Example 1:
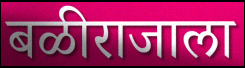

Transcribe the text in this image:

बळीराजाला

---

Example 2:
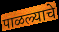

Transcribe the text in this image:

पाळल्याचे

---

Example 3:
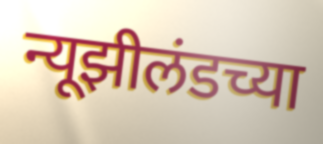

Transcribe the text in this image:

न्यूझीलंडच्या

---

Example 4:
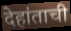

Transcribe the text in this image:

देहांताची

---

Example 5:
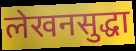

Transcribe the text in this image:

लेखनसुद्धा